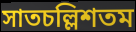
সাতচল্লিশতম